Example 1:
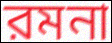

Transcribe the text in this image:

রমনা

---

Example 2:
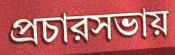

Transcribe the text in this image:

প্রচারসভায়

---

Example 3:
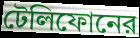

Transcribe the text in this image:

টেলিফোনের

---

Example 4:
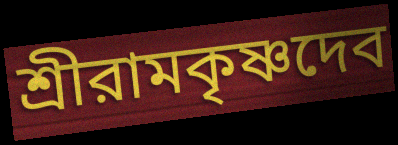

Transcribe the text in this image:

শ্রীরামকৃষ্ণদেব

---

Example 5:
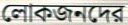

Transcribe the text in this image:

লোকজনদের